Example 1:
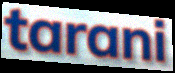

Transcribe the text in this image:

tarani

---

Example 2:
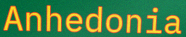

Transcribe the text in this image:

Anhedonia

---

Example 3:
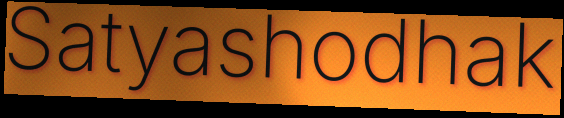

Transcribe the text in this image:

Satyashodhak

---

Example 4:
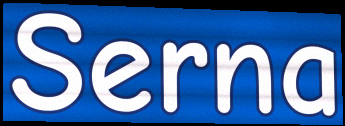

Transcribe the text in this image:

Serna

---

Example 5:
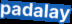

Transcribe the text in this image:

padalay